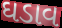
ઘડાવ